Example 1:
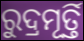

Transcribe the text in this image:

ରୁଦ୍ରମୂର୍ତ୍ତି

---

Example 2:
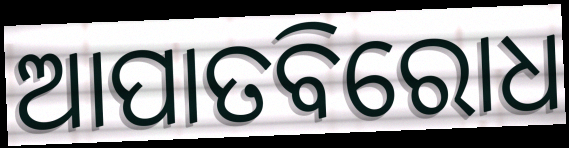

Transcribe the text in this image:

ଆପାତବିରୋଧ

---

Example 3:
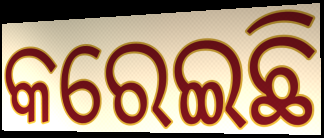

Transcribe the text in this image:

କରେଇଛି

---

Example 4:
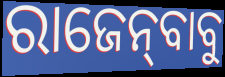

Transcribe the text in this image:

ରାଜେନ୍‌ବାବୁ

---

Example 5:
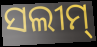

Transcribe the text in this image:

ସଲୀମ୍